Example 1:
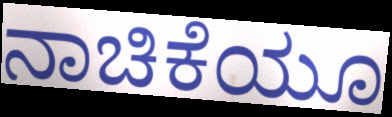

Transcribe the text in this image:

ನಾಚಿಕೆಯೂ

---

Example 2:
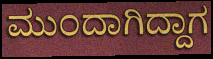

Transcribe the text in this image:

ಮುಂದಾಗಿದ್ದಾಗ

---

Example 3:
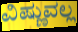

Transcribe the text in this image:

ವಿಷ್ಣುವಲ್ಲ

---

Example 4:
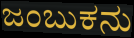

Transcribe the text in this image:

ಜಂಬುಕನು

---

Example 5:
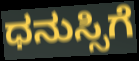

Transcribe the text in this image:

ಧನುಸ್ಸಿಗೆ